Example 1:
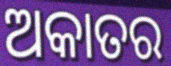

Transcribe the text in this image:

ଅକାତର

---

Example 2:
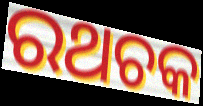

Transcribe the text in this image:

ରଥଚକ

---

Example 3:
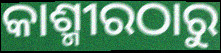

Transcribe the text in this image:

କାଶ୍ମୀରଠାରୁ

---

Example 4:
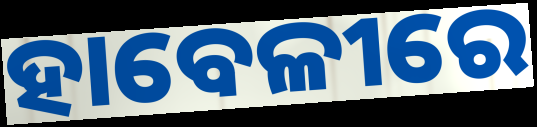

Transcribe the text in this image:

ହାବେଳୀରେ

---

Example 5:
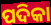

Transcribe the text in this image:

ପଦିକା